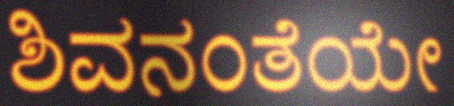
ಶಿವನಂತೆಯೇ